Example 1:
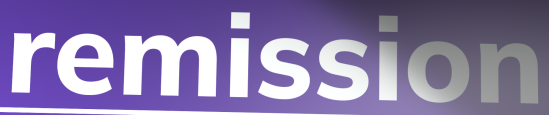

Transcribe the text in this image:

remission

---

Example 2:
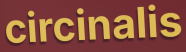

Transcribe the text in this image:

circinalis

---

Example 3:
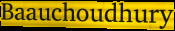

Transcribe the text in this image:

Baauchoudhury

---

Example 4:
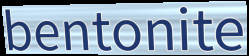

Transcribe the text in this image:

bentonite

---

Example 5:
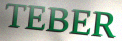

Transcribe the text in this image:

TEBER